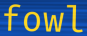
fowl